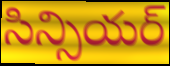
సిన్సియర్